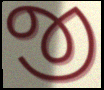
જી